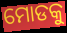
ମୋଡକୁ